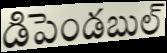
డిపెండబుల్